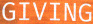
GIVING